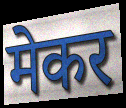
मेकर